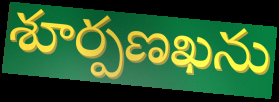
శూర్పణఖను